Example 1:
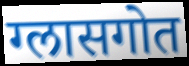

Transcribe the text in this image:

ग्लासगोत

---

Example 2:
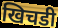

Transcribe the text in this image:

खिचडी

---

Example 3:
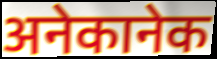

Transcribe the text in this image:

अनेकानेक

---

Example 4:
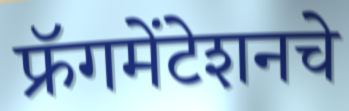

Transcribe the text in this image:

फ्रॅगमेंटेशनचे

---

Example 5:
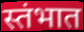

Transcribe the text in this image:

स्तंभात